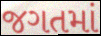
જગતમાં